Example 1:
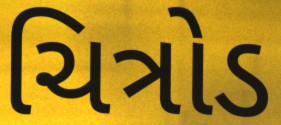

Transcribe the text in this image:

ચિત્રોડ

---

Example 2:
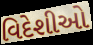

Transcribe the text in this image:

વિદેશીઓ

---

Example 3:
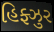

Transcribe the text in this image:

હિફ્ઝુર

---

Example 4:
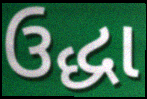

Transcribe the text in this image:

ઉદ્ધા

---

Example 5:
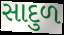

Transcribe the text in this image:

સાદુળ